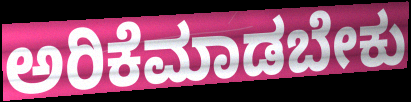
ಅರಿಕೆಮಾಡಬೇಕು